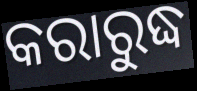
କରାରୁଦ୍ଧ